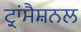
ਟ੍ਰਾਂਸੈਸ਼ਨਲ